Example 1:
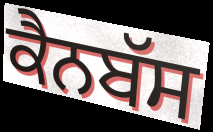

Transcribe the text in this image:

ਕੈਨਬੱਸ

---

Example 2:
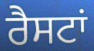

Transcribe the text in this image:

ਰੈਸਟਾਂ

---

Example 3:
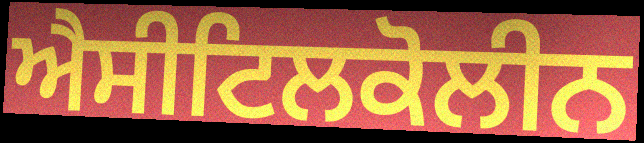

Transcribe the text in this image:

ਐਸੀਟਿਲਕੋਲੀਨ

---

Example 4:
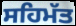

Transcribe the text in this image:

ਸਹਿਮੱਤ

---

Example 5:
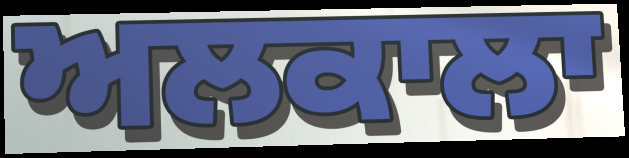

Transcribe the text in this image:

ਅਲਕਾਲਾ